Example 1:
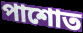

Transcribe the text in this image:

পাশোত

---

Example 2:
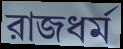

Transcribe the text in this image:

রাজধর্ম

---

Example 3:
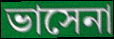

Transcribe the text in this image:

ভাসেনা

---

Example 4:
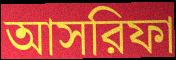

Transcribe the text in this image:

আসরিফা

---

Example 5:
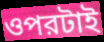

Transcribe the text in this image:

ওপরটাই